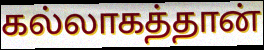
கல்லாகத்தான்